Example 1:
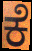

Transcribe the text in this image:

ಕೆ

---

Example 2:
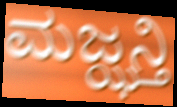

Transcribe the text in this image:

ಮಜ್ಝನ್ತಿ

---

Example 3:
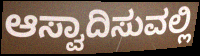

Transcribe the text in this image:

ಆಸ್ವಾದಿಸುವಲ್ಲಿ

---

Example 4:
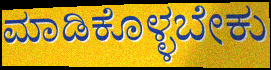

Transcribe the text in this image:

ಮಾಡಿಕೊಳ್ಳಬೇಕು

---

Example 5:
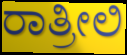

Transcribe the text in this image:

ರಾತ್ರೀಲಿ